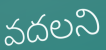
వదలని